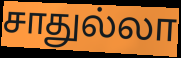
சாதுல்லா